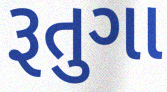
રૂતુગા